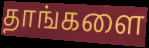
தாங்களை